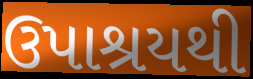
ઉપાશ્રયથી